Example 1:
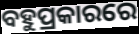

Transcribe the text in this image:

ବହୁପ୍ରକାରରେ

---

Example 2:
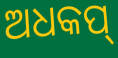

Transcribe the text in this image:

ଅଧକପ୍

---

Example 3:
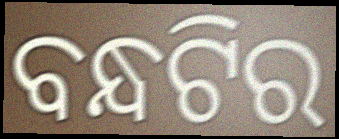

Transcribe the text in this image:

ବନ୍ଧଟିର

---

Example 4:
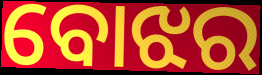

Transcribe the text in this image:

ବୋଝର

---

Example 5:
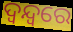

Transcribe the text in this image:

ଦ୍ୱନ୍ଦ୍ବରେ